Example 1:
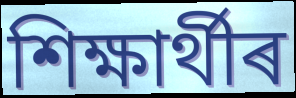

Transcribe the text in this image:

শিক্ষাৰ্থীৰ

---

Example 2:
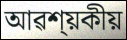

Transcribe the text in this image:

আৱশ্য়কীয়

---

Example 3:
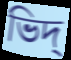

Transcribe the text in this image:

ভিদ্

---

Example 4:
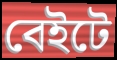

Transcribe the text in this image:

বেইটে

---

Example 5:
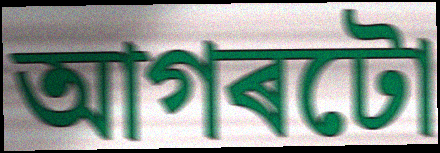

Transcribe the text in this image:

আগৰটো